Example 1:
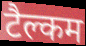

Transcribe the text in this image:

टैल्कम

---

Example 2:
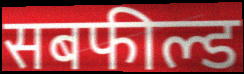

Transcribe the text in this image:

सबफील्ड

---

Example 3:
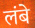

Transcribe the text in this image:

लंबे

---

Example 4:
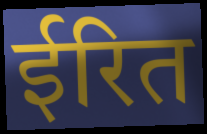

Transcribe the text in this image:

ईरित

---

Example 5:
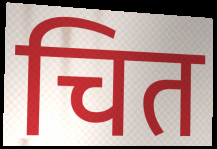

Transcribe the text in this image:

चित